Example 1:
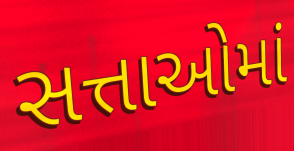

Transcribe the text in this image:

સત્તાઓમાં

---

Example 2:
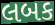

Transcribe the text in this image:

લબક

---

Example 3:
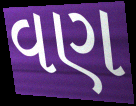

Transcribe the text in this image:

વણ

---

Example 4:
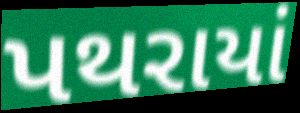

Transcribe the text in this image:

પથરાયાં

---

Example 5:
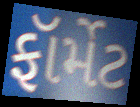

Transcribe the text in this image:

ફૉર્મેટ